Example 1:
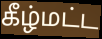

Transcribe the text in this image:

கீழ்மட்ட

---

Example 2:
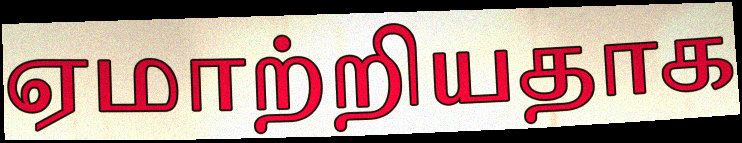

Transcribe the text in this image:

ஏமாற்றியதாக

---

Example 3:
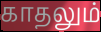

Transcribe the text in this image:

காதலும்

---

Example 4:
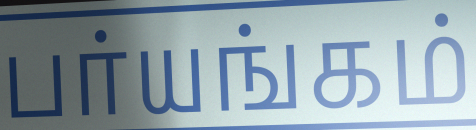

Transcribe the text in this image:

பர்யங்கம்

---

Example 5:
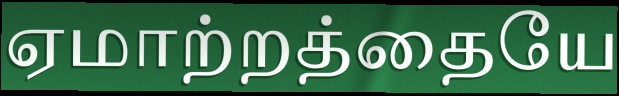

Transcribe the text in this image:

ஏமாற்றத்தையே